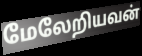
மேலேறியவன்